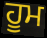
ਹੂਮ